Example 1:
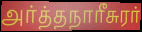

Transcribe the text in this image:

அர்த்தநாரீசுரர்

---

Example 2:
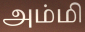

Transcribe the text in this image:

அம்மி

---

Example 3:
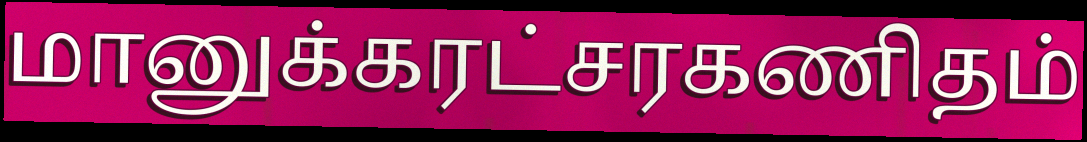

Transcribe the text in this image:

மானுக்கரட்சரகணிதம்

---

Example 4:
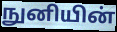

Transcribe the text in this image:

நுனியின்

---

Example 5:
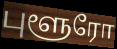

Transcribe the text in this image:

புளூரோ